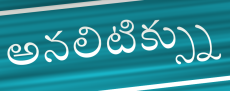
అనలిటిక్స్ను